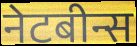
नेटबीन्स